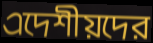
এদেশীয়দের